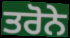
ਤਰੋਨੇ